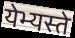
येभ्यस्ते